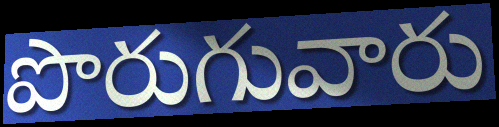
పొరుగువారు